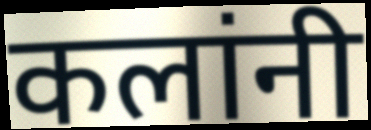
कलांनी